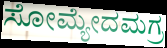
ಸೋಮ್ಯೇದಮಗ್ರ